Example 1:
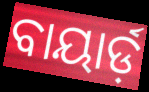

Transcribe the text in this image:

ବାୟାର୍ଡ଼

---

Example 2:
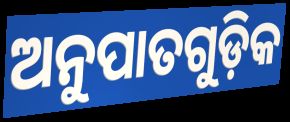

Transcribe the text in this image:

ଅନୁପାତଗୁଡ଼ିକ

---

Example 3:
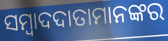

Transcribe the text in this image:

ସମ୍ବାଦଦାତାମାନଙ୍କର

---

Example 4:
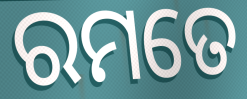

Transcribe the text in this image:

ରମତେ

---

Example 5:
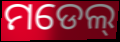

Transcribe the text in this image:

ମଡେଲ୍